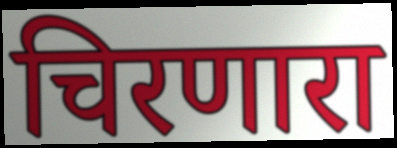
चिरणारा